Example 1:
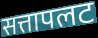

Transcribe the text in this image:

सत्तापलट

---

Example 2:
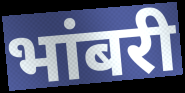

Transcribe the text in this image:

भांबरी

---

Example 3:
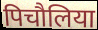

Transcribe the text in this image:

पिचौलिया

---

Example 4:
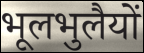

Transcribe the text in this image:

भूलभुलैयों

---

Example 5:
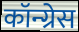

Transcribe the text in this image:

कॉन्ग्रेस